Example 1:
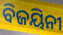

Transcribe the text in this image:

ବିଜୟିନୀ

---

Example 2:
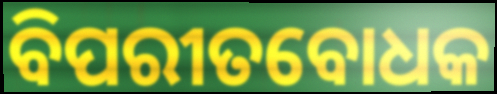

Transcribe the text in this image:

ବିପରୀତବୋଧକ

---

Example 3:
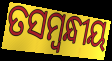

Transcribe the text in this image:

ତସମ୍ବନ୍ଧୀୟ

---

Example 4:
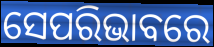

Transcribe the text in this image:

ସେପରିଭାବରେ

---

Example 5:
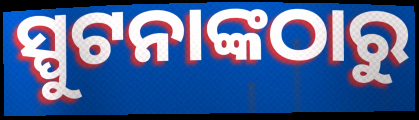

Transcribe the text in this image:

ସ୍ପୁଟନାଙ୍କଠାରୁ